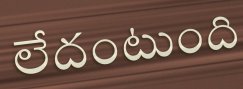
లేదంటుంది